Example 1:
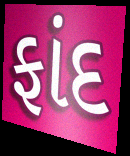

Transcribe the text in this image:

ફાંદ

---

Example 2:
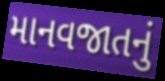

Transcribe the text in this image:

માનવજાતનું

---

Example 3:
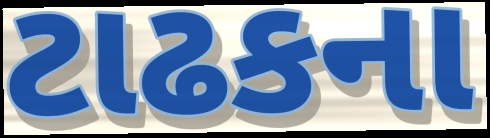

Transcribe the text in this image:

ટાઢકના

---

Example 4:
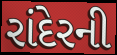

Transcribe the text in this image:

રાંદેરની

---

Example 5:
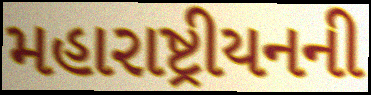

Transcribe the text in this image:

મહારાષ્ટ્રીયનની